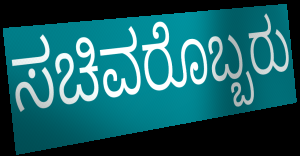
ಸಚಿವರೊಬ್ಬರು